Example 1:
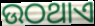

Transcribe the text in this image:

ଉଠଥାଏ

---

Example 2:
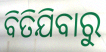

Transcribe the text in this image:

ବିତିଯିବାରୁ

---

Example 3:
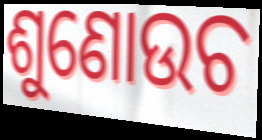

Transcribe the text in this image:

ଶୁଣୋଉଚ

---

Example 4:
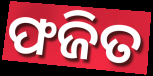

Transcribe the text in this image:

ଫଜିତ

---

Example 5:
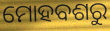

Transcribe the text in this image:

ମୋହବଶରୁ